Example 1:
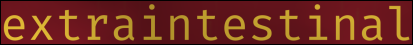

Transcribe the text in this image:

extraintestinal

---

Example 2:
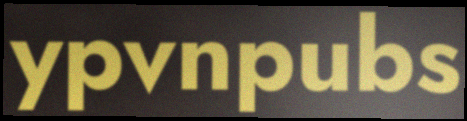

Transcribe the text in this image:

ypvnpubs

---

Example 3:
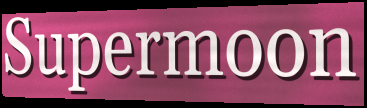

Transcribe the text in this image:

Supermoon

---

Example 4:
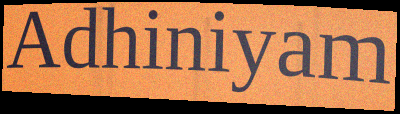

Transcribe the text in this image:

Adhiniyam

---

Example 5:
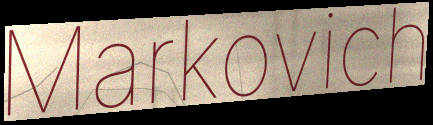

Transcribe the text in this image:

Markovich